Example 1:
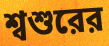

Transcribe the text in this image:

শ্বশুরের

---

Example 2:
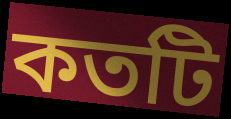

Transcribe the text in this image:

কতটি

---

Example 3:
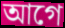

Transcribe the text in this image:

আগে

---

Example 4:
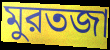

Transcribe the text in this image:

মুরতজা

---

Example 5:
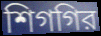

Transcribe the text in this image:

শিগগির